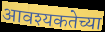
आवश्यकतेच्या